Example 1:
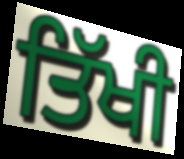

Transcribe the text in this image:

ਤਿੱਖੀ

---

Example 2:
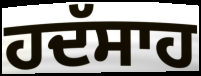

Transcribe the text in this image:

ਹਦੱਸਾਹ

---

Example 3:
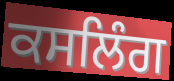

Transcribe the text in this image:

ਕਸਲਿੰਗ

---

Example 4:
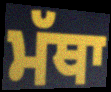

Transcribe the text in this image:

ਮੱਥਾ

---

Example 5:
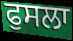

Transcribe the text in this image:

ਫੁਸਲਾ